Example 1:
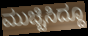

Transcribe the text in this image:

ಮುಚ್ಚಿಸಿದ್ದೂ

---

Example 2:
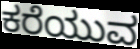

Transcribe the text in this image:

ಕರೆಯುವ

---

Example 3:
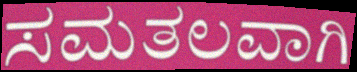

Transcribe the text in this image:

ಸಮತಲವಾಗಿ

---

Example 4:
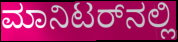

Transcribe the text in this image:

ಮಾನಿಟರ್‌ನಲ್ಲಿ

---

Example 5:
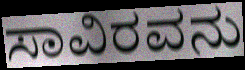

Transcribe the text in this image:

ಸಾವಿರವನು